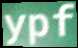
ypf